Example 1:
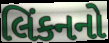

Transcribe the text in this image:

લિંકનનો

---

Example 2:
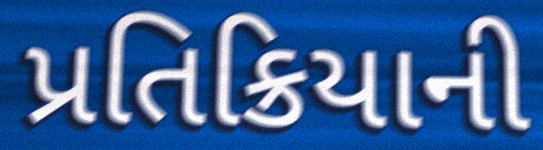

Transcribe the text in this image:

પ્રતિક્રિયાની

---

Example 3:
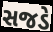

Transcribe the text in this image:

સજડે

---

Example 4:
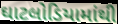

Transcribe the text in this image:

ઘાટલોડિયામાંથી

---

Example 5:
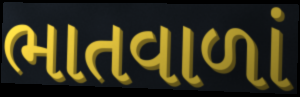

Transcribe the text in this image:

ભાતવાળાં